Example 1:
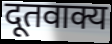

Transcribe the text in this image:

दूतवाक्य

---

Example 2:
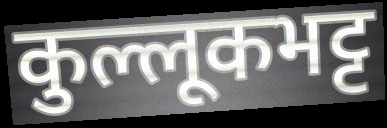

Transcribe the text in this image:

कुल्लूकभट्ट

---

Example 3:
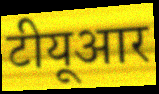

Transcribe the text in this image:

टीयूआर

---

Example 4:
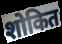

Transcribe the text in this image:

शोकित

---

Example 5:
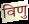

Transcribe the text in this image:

विणु